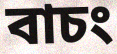
বাচং